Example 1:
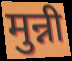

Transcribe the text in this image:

मुन्नी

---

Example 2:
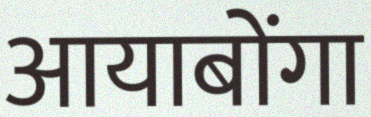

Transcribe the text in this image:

आयाबोंगा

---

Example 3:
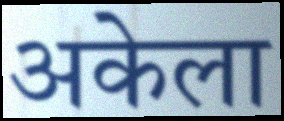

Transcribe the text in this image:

अकेला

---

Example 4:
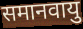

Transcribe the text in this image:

समानवायु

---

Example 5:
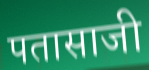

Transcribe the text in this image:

पतासाजी